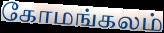
கோமங்கலம்